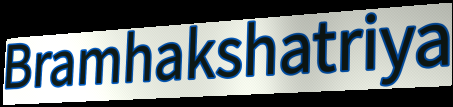
Bramhakshatriya